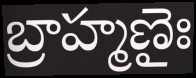
బ్రాహ్మణైః